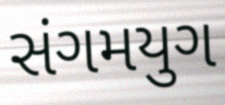
સંગમયુગ